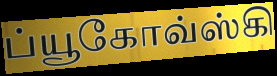
ப்யூகோவ்ஸ்கி